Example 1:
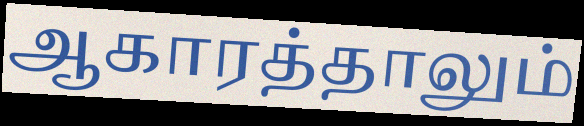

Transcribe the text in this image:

ஆகாரத்தாலும்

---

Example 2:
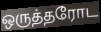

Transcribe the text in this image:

ஒருத்தரோட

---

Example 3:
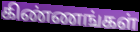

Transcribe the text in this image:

கிண்ணங்கள்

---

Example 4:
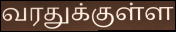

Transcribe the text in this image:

வரதுக்குள்ள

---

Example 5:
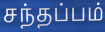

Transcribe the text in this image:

சந்தப்பம்